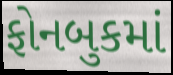
ફોનબુકમાં